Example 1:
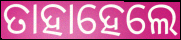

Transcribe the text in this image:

ତାହାହେଲେ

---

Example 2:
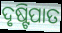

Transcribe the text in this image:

ଦୃଷ୍ଟିପାତ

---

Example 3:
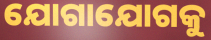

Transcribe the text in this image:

ଯୋଗାଯୋଗକୁ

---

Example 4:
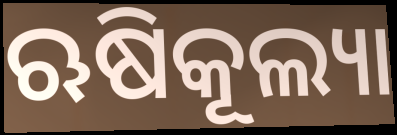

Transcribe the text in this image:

ଋଷିକୂଲ୍ୟା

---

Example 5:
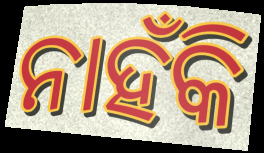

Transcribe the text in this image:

ନାହଁକି